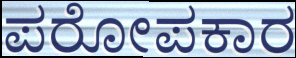
ಪರೋಪಕಾರ